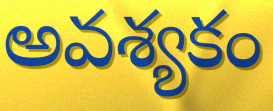
అవశ్యకం